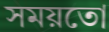
সময়তো